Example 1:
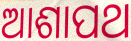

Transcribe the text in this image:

ଆଶାପଥ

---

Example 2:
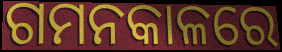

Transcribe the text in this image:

ଗମନକାଳରେ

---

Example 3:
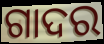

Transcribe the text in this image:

ଗାଦର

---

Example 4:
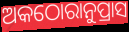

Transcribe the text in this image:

ଅକଠୋରାନୁପ୍ରାସ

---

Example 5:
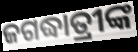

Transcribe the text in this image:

ଜଗଦ୍ଧାତ୍ରୀଙ୍କ